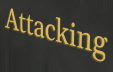
Attacking